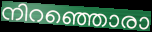
നിറഞ്ഞൊരാ